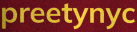
preetynyc